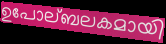
ഉപോല്ബലകമായി